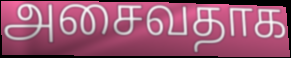
அசைவதாக